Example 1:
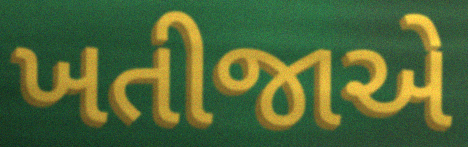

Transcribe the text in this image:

ખતીજાએ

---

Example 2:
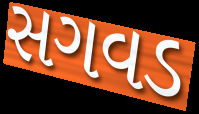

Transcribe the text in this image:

સગવડ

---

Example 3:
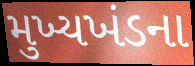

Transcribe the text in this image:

મુખ્યખંડના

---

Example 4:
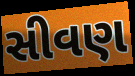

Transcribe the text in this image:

સીવણ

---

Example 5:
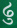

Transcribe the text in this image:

ઢુ